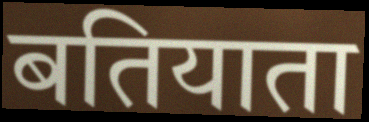
बतियाता